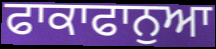
ਫਾਕਾਫਾਨੁਆ